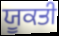
ਯੂਕਤੀ